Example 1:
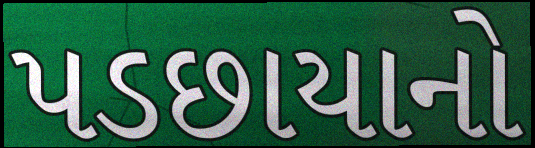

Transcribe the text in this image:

પડછાયાનો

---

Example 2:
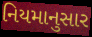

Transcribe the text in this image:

નિયમાનુસાર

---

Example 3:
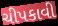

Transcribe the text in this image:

ચીપકાવી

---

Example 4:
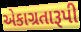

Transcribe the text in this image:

એકાગ્રતારૂપી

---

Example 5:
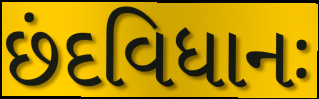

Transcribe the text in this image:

છંદવિધાનઃ